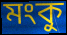
মংকু